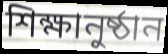
শিক্ষানুষ্ঠান